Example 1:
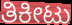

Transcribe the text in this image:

ತಿಕೀಟು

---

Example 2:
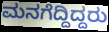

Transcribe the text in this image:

ಮನಗೆದ್ದಿದ್ದರು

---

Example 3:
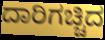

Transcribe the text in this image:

ದಾರಿಗಚ್ಚಿದ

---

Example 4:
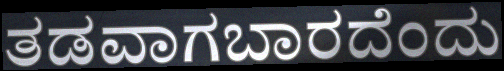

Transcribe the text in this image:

ತಡವಾಗಬಾರದೆಂದು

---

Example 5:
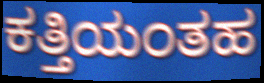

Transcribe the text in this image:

ಕತ್ತಿಯಂತಹ